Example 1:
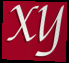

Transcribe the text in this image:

xy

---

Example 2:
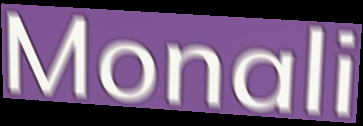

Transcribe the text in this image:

Monali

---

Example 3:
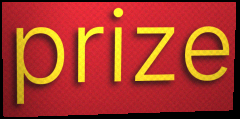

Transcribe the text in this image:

prize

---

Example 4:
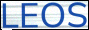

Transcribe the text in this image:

LEOS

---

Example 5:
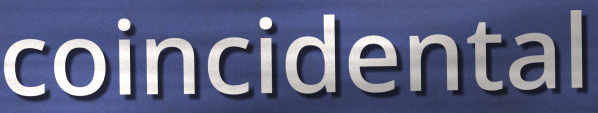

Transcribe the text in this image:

coincidental